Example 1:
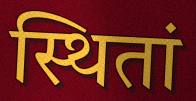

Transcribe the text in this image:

स्थितां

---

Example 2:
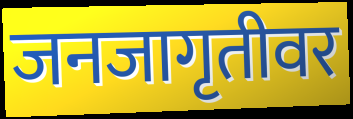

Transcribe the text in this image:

जनजागृतीवर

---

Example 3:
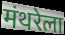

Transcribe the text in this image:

मंथरेला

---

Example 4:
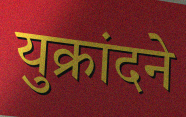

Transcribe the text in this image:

युक्रांदने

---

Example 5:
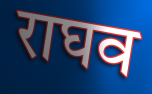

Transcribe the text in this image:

राघव